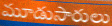
మూడుసారులు